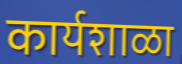
कार्यशाळा